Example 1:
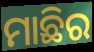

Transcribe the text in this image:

ମାଛିର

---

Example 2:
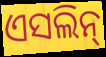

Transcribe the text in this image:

ଏସଲିନ୍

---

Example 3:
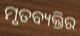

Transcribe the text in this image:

ମୃତବ୍ୟକ୍ତିର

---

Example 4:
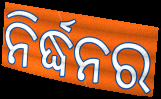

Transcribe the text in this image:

ନିର୍ଦ୍ଧନର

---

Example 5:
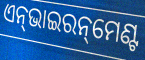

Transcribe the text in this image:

ଏନ୍‌ଭାଇରନ୍‌ମେଣ୍ଟ